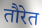
तौरेत